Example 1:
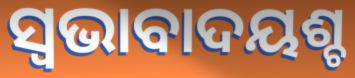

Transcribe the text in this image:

ସ୍ଵଭାବାଦୟଶ୍ଚ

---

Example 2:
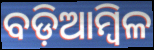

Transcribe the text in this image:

ବଡ଼ିଆମ୍ବିଳ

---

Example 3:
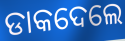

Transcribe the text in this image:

ଡାକଦେଲେ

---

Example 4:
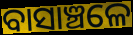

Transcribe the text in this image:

ବାସାଞ୍ଚଳେ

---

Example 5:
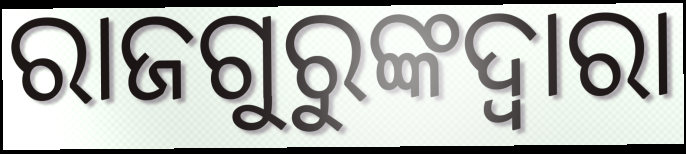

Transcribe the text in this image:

ରାଜଗୁରୁଙ୍କଦ୍ୱାରା